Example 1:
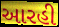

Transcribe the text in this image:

આરહી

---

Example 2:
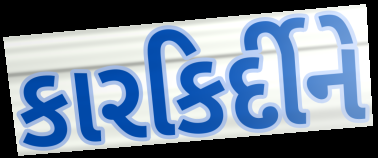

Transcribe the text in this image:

કારકિર્દીને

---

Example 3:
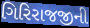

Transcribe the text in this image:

ગિરિરાજજીની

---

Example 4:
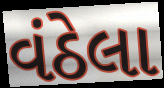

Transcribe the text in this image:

વંઠેલા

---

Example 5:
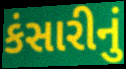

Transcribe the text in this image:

કંસારીનું